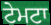
ਟੇਮਟਾ